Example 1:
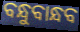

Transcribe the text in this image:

ବନ୍ଧୁବାନ୍ଧବ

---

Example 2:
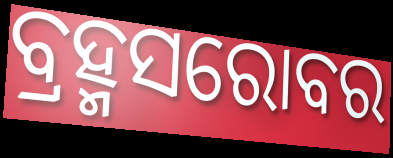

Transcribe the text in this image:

ବ୍ରହ୍ମସରୋବର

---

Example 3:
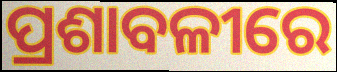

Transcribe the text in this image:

ପ୍ରଶାବଳୀରେ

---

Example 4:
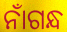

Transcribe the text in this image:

ନାଁଗନ୍ଧ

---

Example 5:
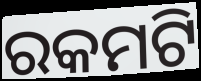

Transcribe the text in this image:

ରକମଟି